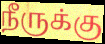
நீருக்கு